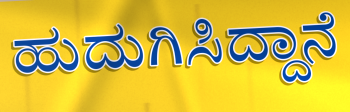
ಹುದುಗಿಸಿದ್ದಾನೆ